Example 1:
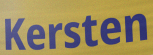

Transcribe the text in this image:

Kersten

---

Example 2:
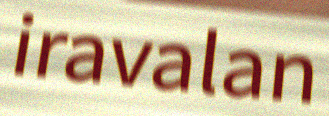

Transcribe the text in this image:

iravalan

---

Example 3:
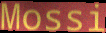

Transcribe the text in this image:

Mossi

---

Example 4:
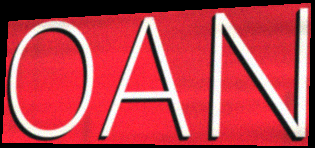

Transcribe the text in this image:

OAN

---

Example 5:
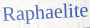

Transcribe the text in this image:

Raphaelite